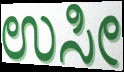
ಉಸೀ